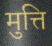
मुत्ति